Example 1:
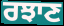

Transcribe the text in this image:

ਰਝਾਣ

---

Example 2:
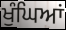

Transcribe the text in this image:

ਖੁੰਘਿਆਂ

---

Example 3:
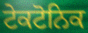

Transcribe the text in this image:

ਟੇਕਟੋਨਿਕ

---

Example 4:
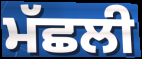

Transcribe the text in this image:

ਮੱਛਲੀ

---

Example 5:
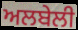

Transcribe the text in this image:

ਅਲਬੇਲੀ